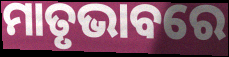
ମାତୃଭାବରେ